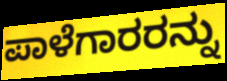
ಪಾಳೆಗಾರರನ್ನು